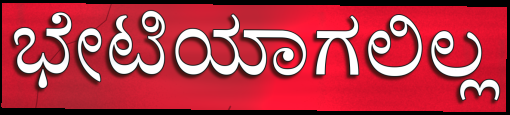
ಭೇಟಿಯಾಗಲಿಲ್ಲ